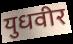
युधवीर